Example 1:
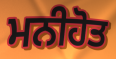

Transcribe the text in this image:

ਮਨੀਹੋਤ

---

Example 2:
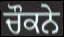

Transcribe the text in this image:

ਚੌਕਨੇ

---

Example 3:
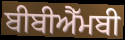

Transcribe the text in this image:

ਬੀਬੀਐੱਮਬੀ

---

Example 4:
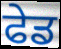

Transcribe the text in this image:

ਫੇਡ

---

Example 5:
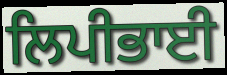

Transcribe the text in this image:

ਲਿਪੀਭਾਈ